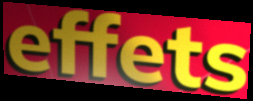
effets